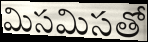
మిసమిసతో